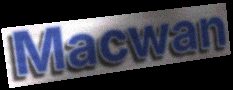
Macwan